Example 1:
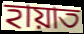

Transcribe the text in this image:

হায়াত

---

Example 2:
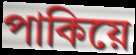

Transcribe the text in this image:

পাকিয়ে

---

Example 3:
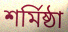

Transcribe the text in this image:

শর্মিষ্ঠা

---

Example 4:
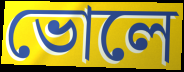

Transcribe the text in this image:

ভোলে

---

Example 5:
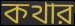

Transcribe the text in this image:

কথার